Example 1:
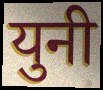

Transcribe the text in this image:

युनी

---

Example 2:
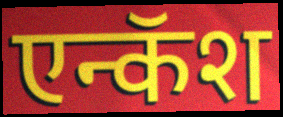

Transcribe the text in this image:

एन्कॅश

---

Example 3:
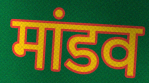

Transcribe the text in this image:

मांडव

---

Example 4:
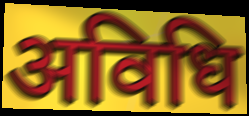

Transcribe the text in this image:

अविधि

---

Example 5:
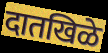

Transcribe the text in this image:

दातखिळे